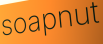
soapnut